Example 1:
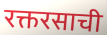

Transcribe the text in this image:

रक्तरसाची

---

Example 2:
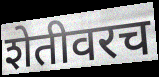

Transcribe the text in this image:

शेतीवरच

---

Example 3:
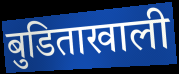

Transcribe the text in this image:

बुडिताखाली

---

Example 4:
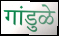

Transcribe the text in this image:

गांडुळे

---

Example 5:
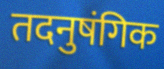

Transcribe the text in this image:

तदनुषंगिक